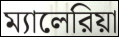
ম্যালেরিয়া